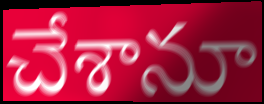
చేశానూ